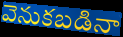
వెనుకబడినా